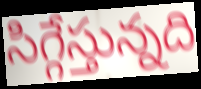
సిగ్గేస్తున్నది